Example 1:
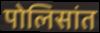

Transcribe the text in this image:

पोलिसांत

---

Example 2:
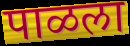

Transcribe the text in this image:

पाळला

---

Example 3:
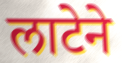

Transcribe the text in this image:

लाटेने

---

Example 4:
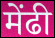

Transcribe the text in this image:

मेंढी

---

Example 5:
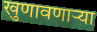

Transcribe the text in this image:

खुणावणाऱ्या